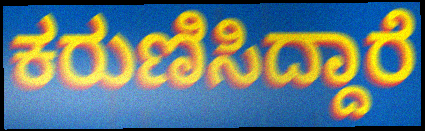
ಕರುಣಿಸಿದ್ದಾರೆ